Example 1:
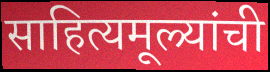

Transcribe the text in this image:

साहित्यमूल्यांची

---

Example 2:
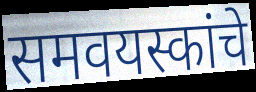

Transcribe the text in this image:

समवयस्कांचे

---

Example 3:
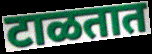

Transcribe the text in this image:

टाळतात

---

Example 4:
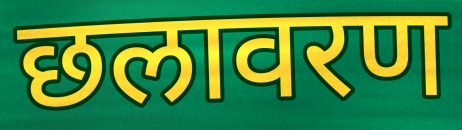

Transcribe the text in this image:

छलावरण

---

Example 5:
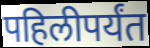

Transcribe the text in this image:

पहिलीपर्यंत